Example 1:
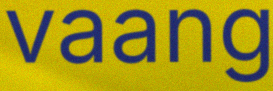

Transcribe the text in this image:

vaang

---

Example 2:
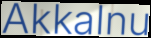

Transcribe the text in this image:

Akkalnu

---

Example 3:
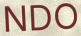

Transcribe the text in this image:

NDO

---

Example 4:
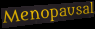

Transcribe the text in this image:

Menopausal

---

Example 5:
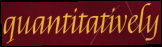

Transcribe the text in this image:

quantitatively